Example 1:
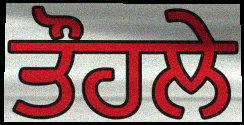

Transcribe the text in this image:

ਤੌਹਲੇ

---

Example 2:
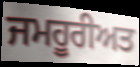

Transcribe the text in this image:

ਜਮਹੂਰੀਅਤ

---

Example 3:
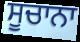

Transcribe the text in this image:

ਸੂਚਾਨਾ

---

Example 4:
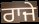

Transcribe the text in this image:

ਰਾਜੇ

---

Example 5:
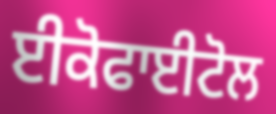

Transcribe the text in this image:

ਈਕੋਫਾਈਟੋਲ